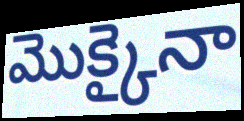
మొక్కైనా